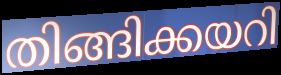
തിങ്ങിക്കയറി